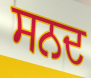
ਸਨਦ